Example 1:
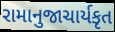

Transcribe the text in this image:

રામાનુજાચાર્યકૃત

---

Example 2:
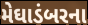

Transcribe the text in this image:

મેઘાડંબરના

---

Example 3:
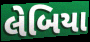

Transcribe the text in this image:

લેબિયા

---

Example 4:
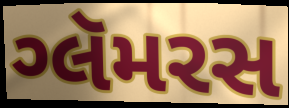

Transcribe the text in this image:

ગ્લૅમરસ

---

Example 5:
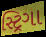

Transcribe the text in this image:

સ્ટ્રિગા